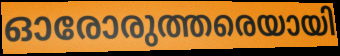
ഓരോരുത്തരെയായി